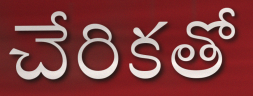
చేరికతో